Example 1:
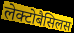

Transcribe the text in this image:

लेक्टोबैसिलस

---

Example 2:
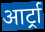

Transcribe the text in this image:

आर्ट्रा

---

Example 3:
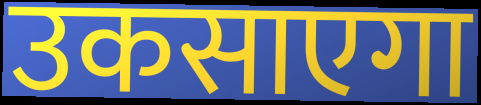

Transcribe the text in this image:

उकसाएगा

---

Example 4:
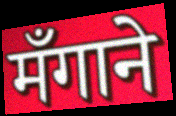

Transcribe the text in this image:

मँगाने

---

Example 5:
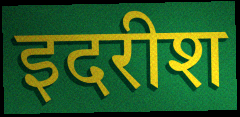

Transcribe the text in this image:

इदरीश